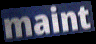
maint